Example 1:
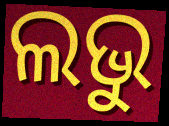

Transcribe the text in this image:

ଲଭୁ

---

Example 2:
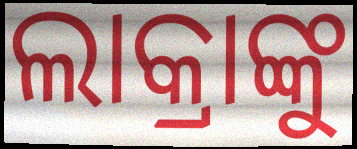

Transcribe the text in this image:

ଲାକ୍ରାଙ୍କୁ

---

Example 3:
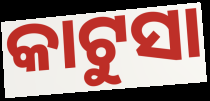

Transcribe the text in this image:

କାଟୁସା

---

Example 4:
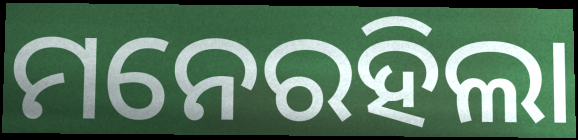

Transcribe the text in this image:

ମନେରହିଲା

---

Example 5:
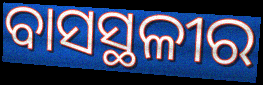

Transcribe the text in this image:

ବାସସ୍ଥଳୀର